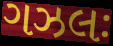
ગઝલઃ